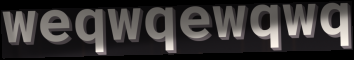
weqwqewqwq